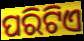
ପରିଟିଏ